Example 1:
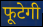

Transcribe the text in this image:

फूटेगी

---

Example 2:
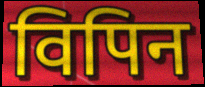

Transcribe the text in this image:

विपिन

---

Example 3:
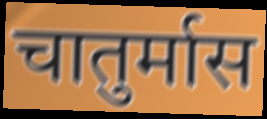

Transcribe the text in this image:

चातुर्मास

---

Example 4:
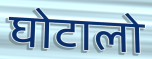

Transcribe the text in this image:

घोटालो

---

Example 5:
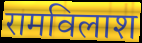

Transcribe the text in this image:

रामविलाश